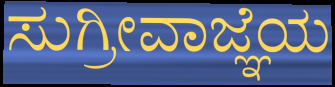
ಸುಗ್ರೀವಾಜ್ಞೆಯ